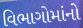
વિભાગોમાંનો